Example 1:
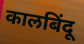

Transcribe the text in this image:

कालबिंदू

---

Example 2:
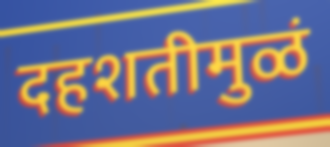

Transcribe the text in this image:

दहशतीमुळं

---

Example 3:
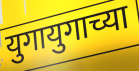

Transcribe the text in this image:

युगायुगाच्या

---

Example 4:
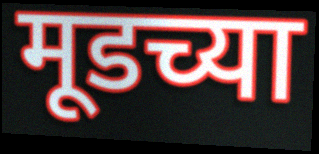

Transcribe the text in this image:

मूडच्या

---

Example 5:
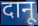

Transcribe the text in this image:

दानू